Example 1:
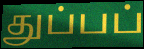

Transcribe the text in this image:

துப்பப்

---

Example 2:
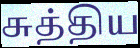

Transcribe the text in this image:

சுத்திய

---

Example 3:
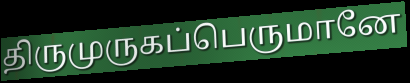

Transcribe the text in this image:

திருமுருகப்பெருமானே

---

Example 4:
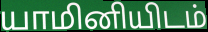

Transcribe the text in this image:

யாமினியிடம்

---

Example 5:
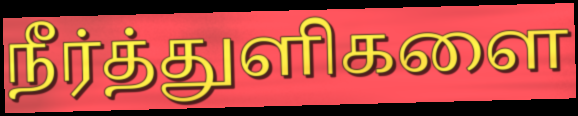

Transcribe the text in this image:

நீர்த்துளிகளை